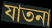
যাতনা